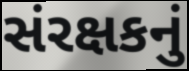
સંરક્ષકનું